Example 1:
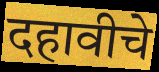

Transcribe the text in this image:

दहावीचे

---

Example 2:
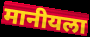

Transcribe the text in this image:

मानीयला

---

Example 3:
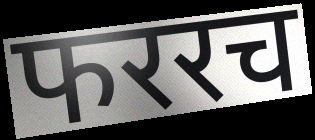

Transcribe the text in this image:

फररच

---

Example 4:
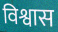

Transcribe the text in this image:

विश्वास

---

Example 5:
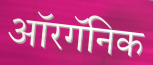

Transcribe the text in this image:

ऑरगॅनिक